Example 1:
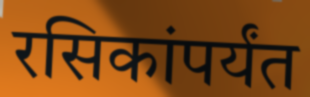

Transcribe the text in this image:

रसिकांपर्यंत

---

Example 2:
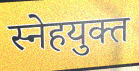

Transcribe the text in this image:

स्नेहयुक्त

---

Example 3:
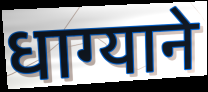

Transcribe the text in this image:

धाग्याने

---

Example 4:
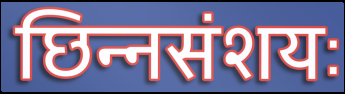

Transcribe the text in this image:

छिन्नसंशयः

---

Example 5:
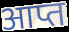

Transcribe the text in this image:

आप्त